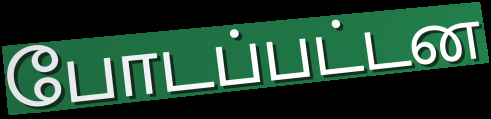
போடப்பட்டன